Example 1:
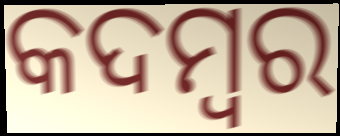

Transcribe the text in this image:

କଦମ୍ବର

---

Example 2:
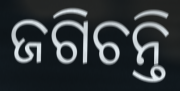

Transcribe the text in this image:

ଜଗିଚନ୍ତି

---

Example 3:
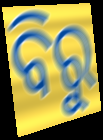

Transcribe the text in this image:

ବିରୁ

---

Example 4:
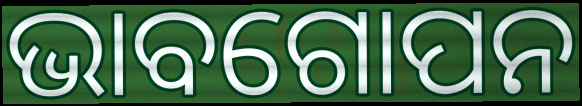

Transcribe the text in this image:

ଭାବଗୋପନ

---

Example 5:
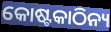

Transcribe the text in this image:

କୋଷ୍ଟକାଠିନ୍ୟ